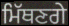
ਮਿੱਥਣਗੇ